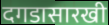
दगडासारखी